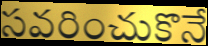
సవరించుకొనే